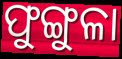
ଫୁଙ୍ଗୁଳା